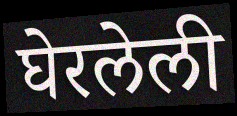
घेरलेली